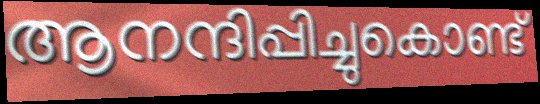
ആനന്ദിപ്പിച്ചുകൊണ്ട്